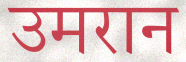
उमरान